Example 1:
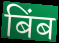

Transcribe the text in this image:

बिंब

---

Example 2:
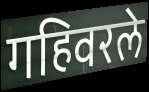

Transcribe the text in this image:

गहिवरले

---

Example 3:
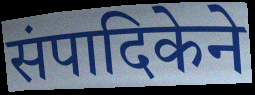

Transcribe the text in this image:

संपादिकेने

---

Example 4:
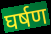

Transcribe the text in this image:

घर्षण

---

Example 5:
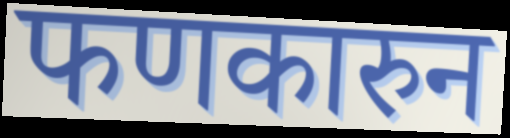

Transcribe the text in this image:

फणकारुन